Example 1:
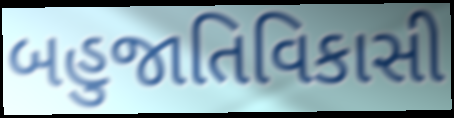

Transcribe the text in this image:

બહુજાતિવિકાસી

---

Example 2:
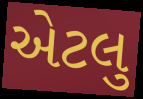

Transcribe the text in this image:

એટલુ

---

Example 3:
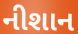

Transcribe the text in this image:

નીશાન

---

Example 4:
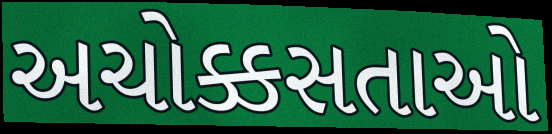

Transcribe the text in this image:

અચોક્કસતાઓ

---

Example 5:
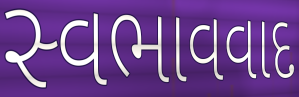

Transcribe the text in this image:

સ્વભાવવાદ